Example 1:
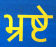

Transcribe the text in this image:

भ्रष्टे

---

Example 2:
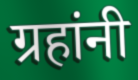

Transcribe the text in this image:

ग्रहांनी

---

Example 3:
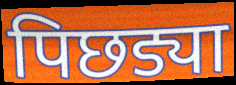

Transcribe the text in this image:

पिछड्या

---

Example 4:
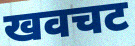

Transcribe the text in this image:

खवचट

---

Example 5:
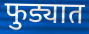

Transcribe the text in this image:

फुड्यात